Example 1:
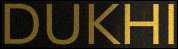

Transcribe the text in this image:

DUKHI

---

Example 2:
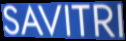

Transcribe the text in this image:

SAVITRI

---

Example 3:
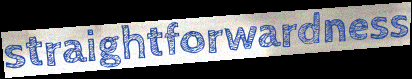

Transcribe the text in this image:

straightforwardness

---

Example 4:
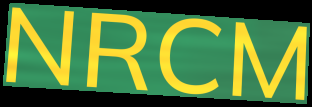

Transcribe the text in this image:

NRCM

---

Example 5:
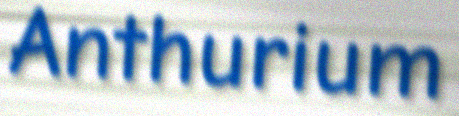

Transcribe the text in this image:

Anthurium